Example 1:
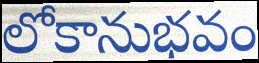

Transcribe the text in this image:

లోకానుభవం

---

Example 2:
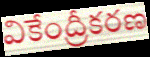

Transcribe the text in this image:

వికేంద్రీకరణ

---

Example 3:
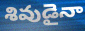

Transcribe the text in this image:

శివుడైనా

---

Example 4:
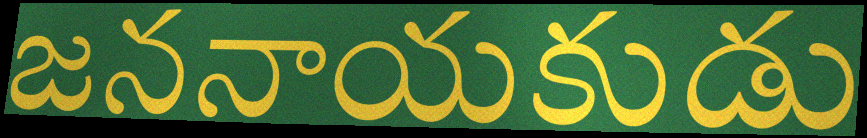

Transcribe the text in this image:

జననాయకుడు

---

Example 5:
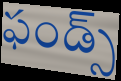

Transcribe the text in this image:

ఫండ్స్